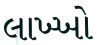
લાખ્ખો